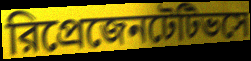
রিপ্রেজেনটেটিভসে